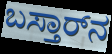
ಬಸ್ತಾರ್‌ನ